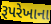
રૂપરેખાના